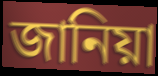
জানিয়া